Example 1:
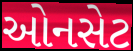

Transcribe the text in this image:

ઓનસેટ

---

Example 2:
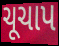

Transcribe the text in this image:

ચૂચાપ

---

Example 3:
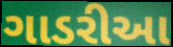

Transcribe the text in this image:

ગાડરીઆ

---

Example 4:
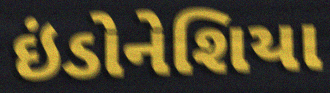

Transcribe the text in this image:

ઇંડોનેશિયા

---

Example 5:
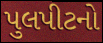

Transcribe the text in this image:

પુલપીટનો